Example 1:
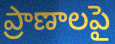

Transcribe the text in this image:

ప్రాణాలపై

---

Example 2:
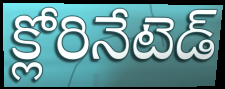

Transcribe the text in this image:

క్లోరినేటెడ్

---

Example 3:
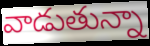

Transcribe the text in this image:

వాడుతున్నా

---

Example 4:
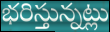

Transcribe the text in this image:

భరిస్తున్నట్లు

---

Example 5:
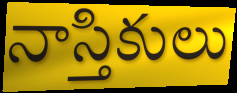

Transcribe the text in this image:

నాస్తికులు